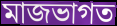
মাজভাগত